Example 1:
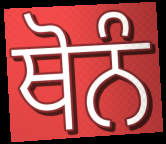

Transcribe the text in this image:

ਥੋਨੰ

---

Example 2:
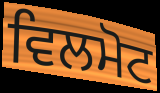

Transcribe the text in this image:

ਵਿਲਮੋਟ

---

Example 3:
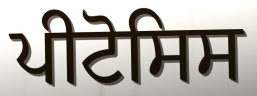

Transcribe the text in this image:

ਪੀਟੋਸਿਸ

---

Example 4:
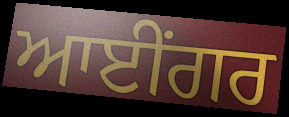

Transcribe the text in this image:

ਆਈਂਗਰ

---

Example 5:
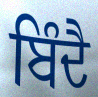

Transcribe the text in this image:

ਬਿੰਦੈ